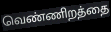
வெண்ணிறத்தை